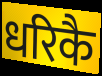
धरिकै